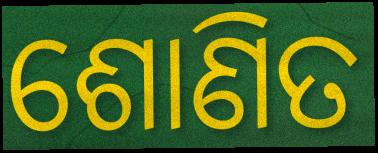
ଶୋଣିତ